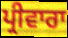
ਪ੍ਰੀਵਾਰਾ